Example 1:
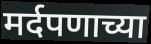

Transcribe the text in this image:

मर्दपणाच्या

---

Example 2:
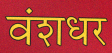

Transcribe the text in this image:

वंशधर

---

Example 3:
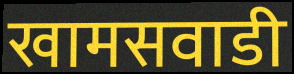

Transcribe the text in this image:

खामसवाडी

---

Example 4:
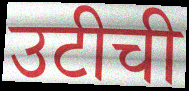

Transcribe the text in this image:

उटीची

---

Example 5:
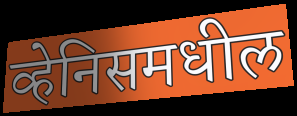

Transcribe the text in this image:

व्हेनिसमधील